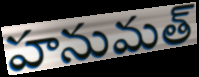
హనుమత్